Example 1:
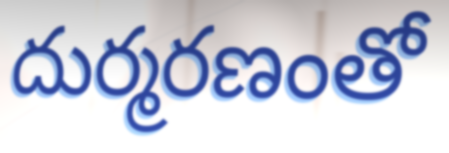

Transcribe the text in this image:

దుర్మరణంతో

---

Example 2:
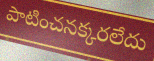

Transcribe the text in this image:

పాటించనక్కరలేదు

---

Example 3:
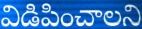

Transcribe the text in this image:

విడిపించాలని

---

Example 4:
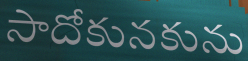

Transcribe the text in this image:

సాదోకునకును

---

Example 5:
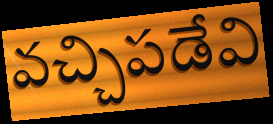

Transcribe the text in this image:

వచ్చిపడేవి